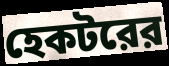
হেকটরের